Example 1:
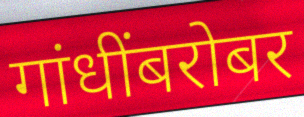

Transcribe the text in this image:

गांधींबरोबर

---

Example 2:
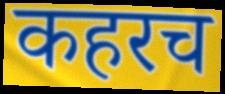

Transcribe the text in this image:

कहरच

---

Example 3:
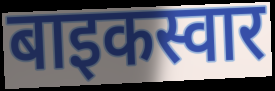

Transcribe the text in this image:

बाइकस्वार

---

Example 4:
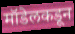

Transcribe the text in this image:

मॉडेलकडून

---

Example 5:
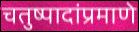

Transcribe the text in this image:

चतुष्पादांप्रमाणे